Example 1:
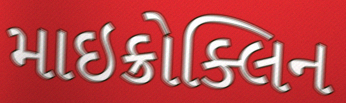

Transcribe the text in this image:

માઇક્રોક્લિન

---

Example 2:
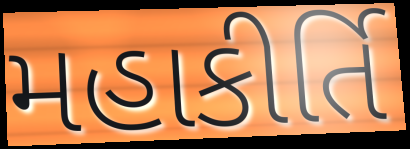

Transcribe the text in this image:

મહાકીર્તિ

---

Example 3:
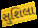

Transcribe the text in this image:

સુશિલા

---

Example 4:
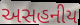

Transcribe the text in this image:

અસહનીય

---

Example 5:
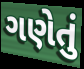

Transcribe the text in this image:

ગણેતું